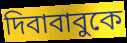
দিবাবাবুকে